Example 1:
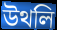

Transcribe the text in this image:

উথলি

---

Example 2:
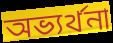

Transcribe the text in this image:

অভ্যৰ্থনা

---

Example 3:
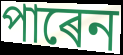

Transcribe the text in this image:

পাৰেন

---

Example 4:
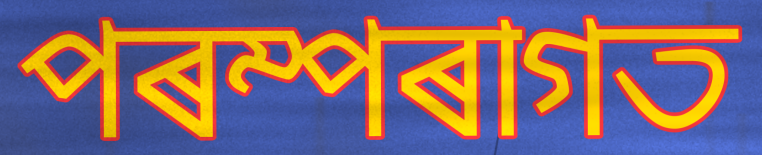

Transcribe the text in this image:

পৰম্পৰাগত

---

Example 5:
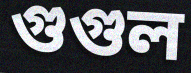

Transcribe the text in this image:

গুগুল